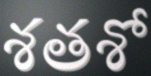
శతశో